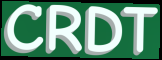
CRDT